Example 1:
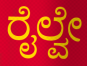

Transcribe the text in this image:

ರೈಲ್ವೇ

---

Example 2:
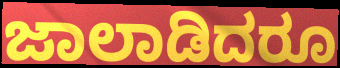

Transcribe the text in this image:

ಜಾಲಾಡಿದರೂ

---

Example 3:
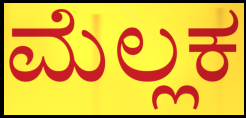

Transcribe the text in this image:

ಮೆಲ್ಲಕ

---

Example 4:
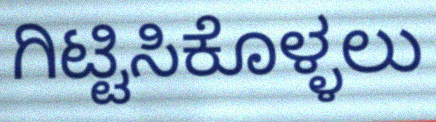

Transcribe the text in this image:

ಗಿಟ್ಟಿಸಿಕೊಳ್ಳಲು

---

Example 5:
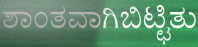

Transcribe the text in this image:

ಶಾಂತವಾಗಿಬಿಟ್ಟಿತು